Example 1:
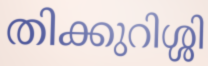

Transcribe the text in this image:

തിക്കുറിശ്ശി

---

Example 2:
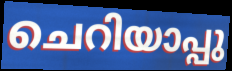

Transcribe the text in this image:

ചെറിയാപ്പു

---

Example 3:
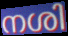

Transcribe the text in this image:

നശി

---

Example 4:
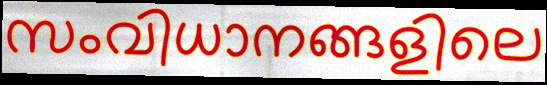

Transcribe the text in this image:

സംവിധാനങ്ങളിലെ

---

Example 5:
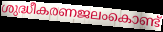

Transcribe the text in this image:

ശുദ്ധീകരണജലംകൊണ്ട്